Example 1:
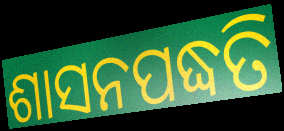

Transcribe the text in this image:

ଶାସନପଦ୍ଧତି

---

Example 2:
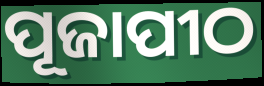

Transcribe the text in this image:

ପୂଜାପୀଠ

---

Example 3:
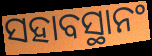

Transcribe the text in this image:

ସହାବସ୍ଥାନଂ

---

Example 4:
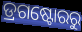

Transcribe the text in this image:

ଡ୍ରଗଷ୍ଟୋରରୁ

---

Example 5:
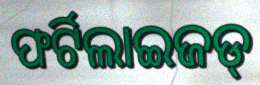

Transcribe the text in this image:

ଫର୍ଟିଲାଇଜଡ୍